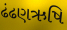
ઢંઢણઋષિ